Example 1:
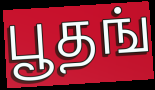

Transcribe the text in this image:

பூதங்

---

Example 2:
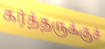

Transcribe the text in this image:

கர்த்தருக்குச்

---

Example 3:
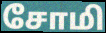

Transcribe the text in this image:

சோமி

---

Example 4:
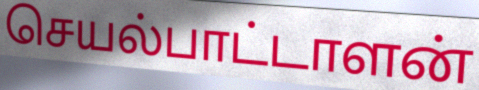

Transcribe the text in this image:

செயல்பாட்டாளன்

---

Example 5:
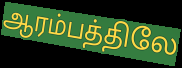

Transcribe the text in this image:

ஆரம்பத்திலே